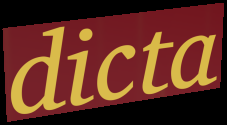
dicta